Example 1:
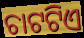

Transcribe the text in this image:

ଚାଟଟିଏ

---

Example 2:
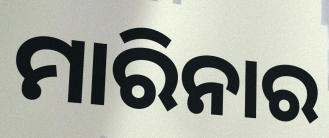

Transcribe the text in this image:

ମାରିନାର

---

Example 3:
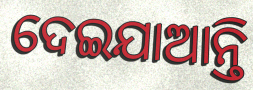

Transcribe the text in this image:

ଦେଇଯାଆନ୍ତି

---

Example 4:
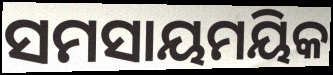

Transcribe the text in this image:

ସମସାୟମୟିକ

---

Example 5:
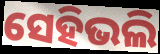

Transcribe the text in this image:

ସେହିଭଲି